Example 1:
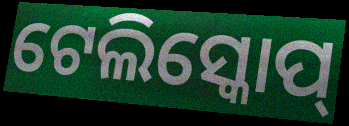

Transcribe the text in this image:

ଟେଲିସ୍କୋପ୍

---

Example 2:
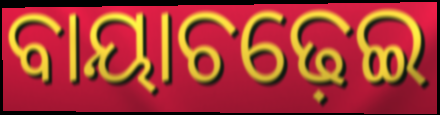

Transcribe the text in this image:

ବାୟାଚଢ଼େଇ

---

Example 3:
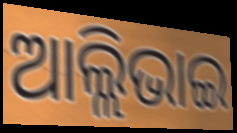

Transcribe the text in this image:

ଆଲ୍ଲିଭାଇ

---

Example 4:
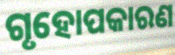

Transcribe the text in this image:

ଗୃହୋପକାରଣ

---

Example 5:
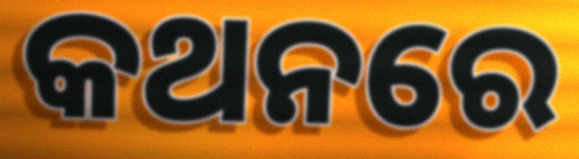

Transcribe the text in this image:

କଥନରେ